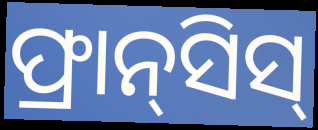
ଫ୍ରାନ୍‌ସିସ୍